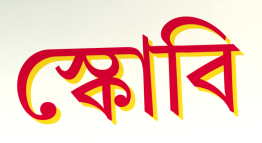
স্কোবি